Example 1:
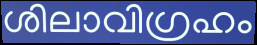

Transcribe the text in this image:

ശിലാവിഗ്രഹം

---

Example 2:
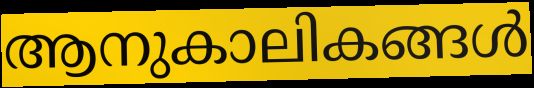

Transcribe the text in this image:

ആനുകാലികങ്ങൾ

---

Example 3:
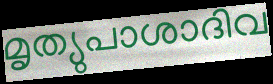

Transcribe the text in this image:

മൃത്യുപാശാദിവ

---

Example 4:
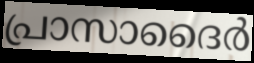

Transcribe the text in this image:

പ്രാസാദൈർ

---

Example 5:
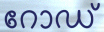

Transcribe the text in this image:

റോഡ്